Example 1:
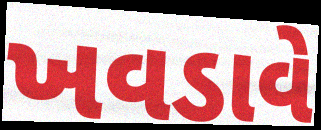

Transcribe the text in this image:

ખવડાવે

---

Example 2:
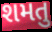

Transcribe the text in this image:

શમતુ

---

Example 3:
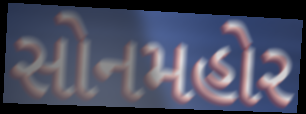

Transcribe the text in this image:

સોનમહોર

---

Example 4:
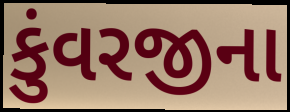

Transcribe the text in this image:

કુંવરજીના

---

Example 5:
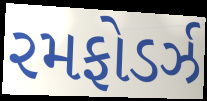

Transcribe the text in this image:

રમફોડર્ઝ